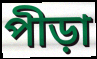
পীড়া